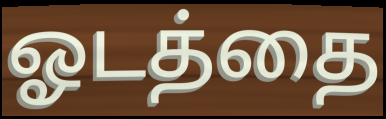
ஓடத்தை